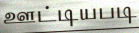
ஊட்டியபடி